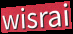
wisrai